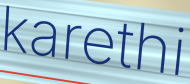
karethi